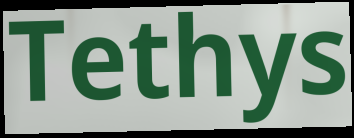
Tethys